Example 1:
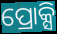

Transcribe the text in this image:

ପ୍ରୋକ୍ସି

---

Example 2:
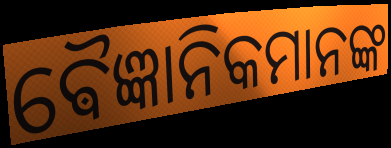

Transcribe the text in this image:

ଵୈଜ୍ଞାନିକମାନଙ୍କ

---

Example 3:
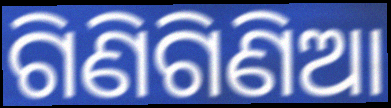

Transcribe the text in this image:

ଗିଣିଗିଣିଆ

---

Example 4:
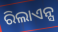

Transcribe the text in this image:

ରିଲାଏନ୍ସ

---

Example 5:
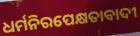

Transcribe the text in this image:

ଧର୍ମନିରପେକ୍ଷତାବାଦୀ